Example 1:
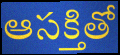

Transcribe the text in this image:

ఆసక్తితో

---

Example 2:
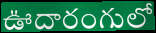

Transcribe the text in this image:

ఊదారంగులో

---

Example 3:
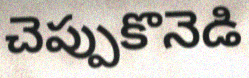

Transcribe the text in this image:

చెప్పుకొనెడి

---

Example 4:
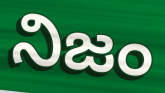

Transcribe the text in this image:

నిజం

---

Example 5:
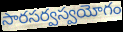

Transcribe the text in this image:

సారసర్వస్వయోగం